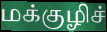
மக்குழிச்